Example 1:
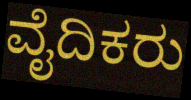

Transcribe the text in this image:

ವೈದಿಕರು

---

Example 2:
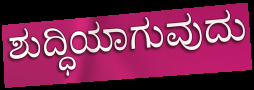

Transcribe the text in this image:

ಶುದ್ಧಿಯಾಗುವುದು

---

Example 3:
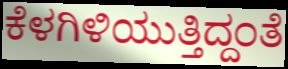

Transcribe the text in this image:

ಕೆಳಗಿಳಿಯುತ್ತಿದ್ದಂತೆ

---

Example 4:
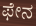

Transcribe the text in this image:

ಫೇನ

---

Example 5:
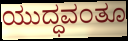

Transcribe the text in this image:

ಯುದ್ಧವಂತೂ